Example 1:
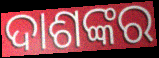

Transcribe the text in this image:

ଦାଶଙ୍କର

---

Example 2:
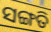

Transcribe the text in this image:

ସଙ୍ଗତି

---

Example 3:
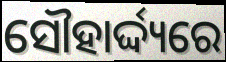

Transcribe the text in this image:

ସୌହାର୍ଦ୍ଦ୍ୟରେ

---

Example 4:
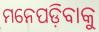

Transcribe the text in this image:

ମନେପଡ଼ିବାକୁ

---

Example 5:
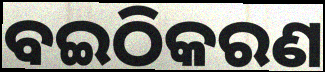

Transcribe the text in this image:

ବଇଠିକରଣ